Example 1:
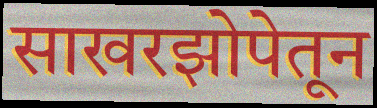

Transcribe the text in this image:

साखरझोपेतून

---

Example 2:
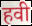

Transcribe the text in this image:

हवी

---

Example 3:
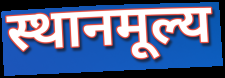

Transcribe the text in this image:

स्थानमूल्य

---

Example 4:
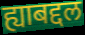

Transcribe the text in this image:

ह्याबद्दल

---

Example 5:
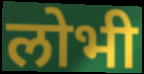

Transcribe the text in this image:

लोभी